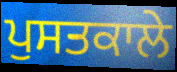
ਪੁਸਤਕਾਲੇ